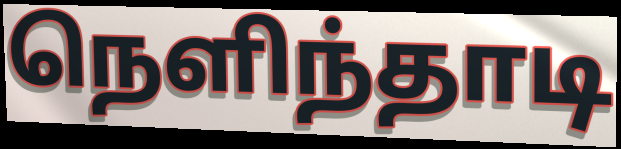
நெளிந்தாடி